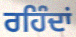
ਰਹਿੰਦਾਂ